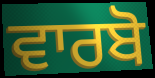
ਵਾਰਬੋ